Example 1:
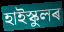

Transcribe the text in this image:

হাইস্কুলৰ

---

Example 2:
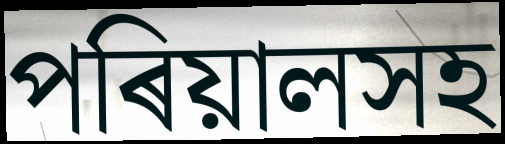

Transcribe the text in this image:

পৰিয়ালসহ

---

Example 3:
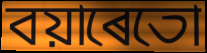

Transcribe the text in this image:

বয়াৰেতো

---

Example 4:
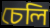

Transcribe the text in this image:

চেলি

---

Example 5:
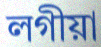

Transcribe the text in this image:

লগীয়া